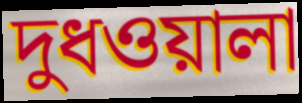
দুধওয়ালা